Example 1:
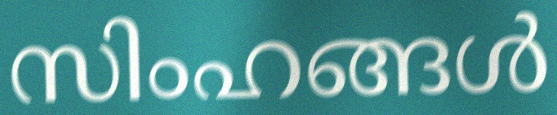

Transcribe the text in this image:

സിംഹങ്ങൾ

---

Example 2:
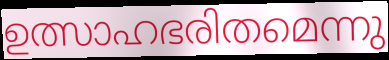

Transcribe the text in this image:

ഉത്സാഹഭരിതമെന്നു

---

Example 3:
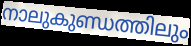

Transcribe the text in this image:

നാലുകുണ്ഡത്തിലും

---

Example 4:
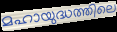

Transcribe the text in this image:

മഹായുദ്ധത്തിലെ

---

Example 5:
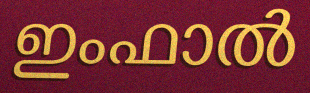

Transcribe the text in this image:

ഇംഫാൽ